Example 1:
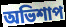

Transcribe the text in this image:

অভিশাপ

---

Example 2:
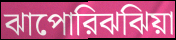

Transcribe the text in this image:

ঝাপোরিঝঝিয়া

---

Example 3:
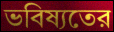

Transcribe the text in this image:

ভবিষ্যতের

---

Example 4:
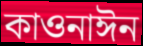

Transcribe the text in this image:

কাওনাঈন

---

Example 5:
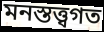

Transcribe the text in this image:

মনস্তত্ত্বগত